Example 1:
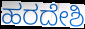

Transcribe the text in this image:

ಹರದೇಶಿ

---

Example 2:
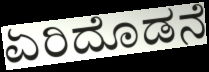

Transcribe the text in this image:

ಏರಿದೊಡನೆ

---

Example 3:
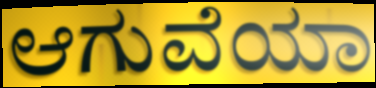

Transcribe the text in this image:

ಆಗುವೆಯಾ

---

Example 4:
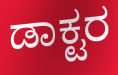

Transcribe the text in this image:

ಡಾಕ್ಟರ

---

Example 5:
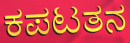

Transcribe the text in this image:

ಕಪಟತನ